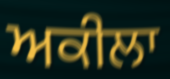
ਅਕੀਲਾ